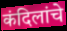
कंदिलांचे